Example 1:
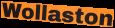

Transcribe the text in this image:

Wollaston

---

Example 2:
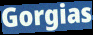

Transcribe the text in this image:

Gorgias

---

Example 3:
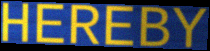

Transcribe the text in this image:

HEREBY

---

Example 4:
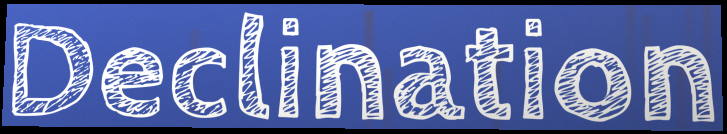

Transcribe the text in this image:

Declination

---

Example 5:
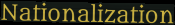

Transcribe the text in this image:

Nationalization